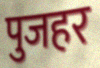
पुजहर